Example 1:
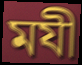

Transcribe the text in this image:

মযী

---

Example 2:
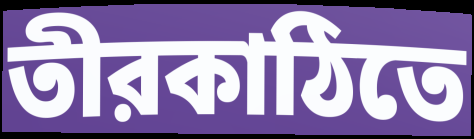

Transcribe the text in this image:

তীরকাঠিতে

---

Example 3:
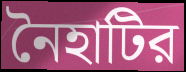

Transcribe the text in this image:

নৈহাটির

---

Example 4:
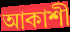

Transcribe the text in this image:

আকাশী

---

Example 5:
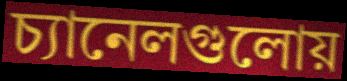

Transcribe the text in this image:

চ্যানেলগুলোয়